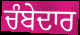
ਚੰਬੇਦਾਰ